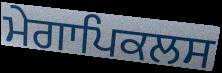
ਮੇਗਾਪਿਕਲਸ